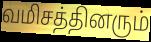
வமிசத்தினரும்